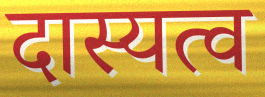
दास्यत्व